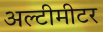
अल्टीमीटर